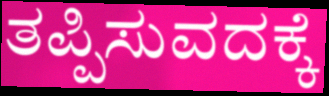
ತಪ್ಪಿಸುವದಕ್ಕೆ